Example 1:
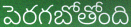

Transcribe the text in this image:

పెరగబోతోంది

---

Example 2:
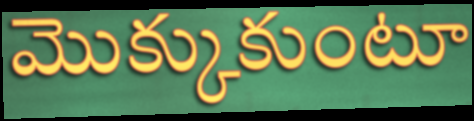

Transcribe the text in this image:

మొక్కుకుంటూ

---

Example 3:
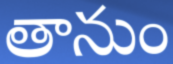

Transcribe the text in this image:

తానుం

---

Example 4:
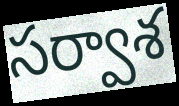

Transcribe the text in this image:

సర్వాశ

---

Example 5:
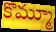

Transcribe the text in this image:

కొమ్మూ